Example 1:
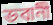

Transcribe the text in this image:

ভবানী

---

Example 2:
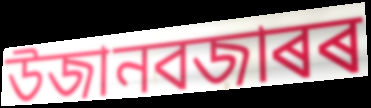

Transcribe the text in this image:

উজানবজাৰৰ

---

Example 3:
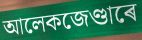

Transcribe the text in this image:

আলেকজেণ্ডাৰে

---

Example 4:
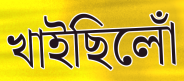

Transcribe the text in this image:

খাইছিলোঁ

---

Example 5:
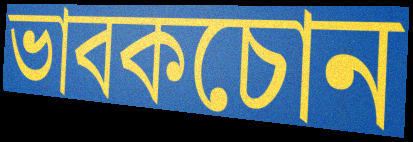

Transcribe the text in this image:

ভাবকচোন